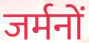
जर्मनों